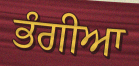
ਭੰਗੀਆ